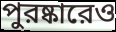
পুরষ্কারেও